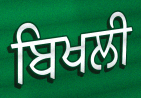
ਬਿਖਲੀ